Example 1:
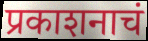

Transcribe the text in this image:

प्रकाशनाचं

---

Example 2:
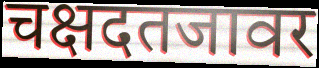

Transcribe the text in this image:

चक्षदतजावर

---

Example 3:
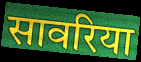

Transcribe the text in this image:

सावरिया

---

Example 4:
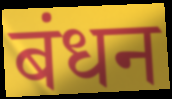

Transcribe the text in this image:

बंधन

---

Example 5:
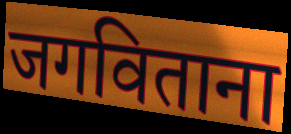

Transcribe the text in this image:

जगविताना